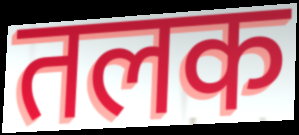
तलक